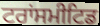
ਟਰਾਂਸਮੀਟਿਡ